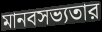
মানবসভ্যতার